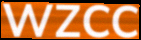
WZCC